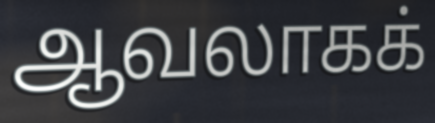
ஆவலாகக்